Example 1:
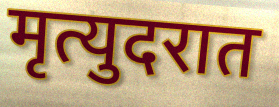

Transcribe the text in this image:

मृत्युदरात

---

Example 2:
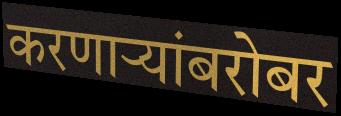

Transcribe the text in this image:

करणार्‍यांबरोबर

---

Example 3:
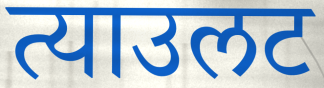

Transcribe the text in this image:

त्याउलट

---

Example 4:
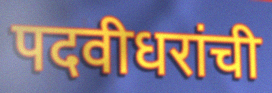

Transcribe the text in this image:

पदवीधरांची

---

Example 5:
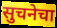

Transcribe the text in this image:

सुचनेचा